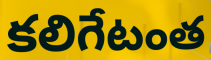
కలిగేటంత